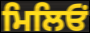
ਮਿਲਿਓਂ